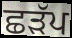
ਛੜੱਪ